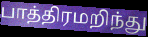
பாத்திரமறிந்து